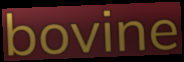
bovine